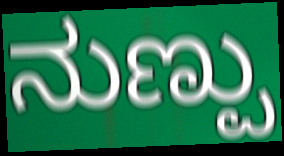
ನುಣ್ಪು